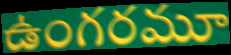
ఉంగరమూ